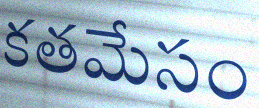
కతమేసం